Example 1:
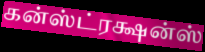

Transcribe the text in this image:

கன்ஸ்ட்ரக்ஷன்ஸ்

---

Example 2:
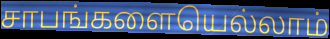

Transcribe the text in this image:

சாபங்களையெல்லாம்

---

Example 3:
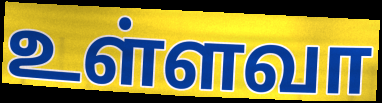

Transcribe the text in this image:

உள்ளவா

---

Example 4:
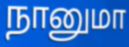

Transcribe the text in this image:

நானுமா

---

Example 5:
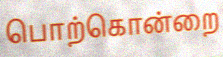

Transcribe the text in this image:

பொற்கொன்றை